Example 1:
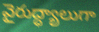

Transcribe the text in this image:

వైరుద్ధ్యాలుగా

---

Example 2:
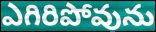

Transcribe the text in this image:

ఎగిరిపోవును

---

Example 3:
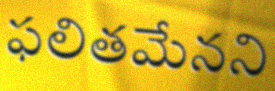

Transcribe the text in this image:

ఫలితమేనని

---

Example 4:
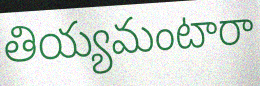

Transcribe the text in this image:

తియ్యమంటారా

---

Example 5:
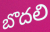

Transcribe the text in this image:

బొదలి